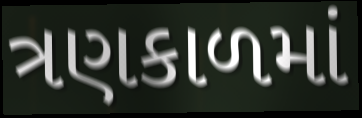
ત્રણકાળમાં